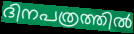
ദിനപത്രത്തിൽ